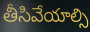
తీసివేయాల్సి